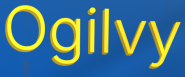
Ogilvy